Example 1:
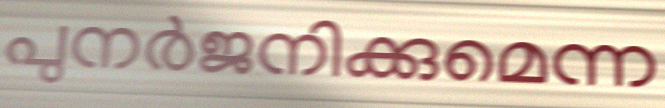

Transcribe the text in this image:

പുനർജനിക്കുമെന്ന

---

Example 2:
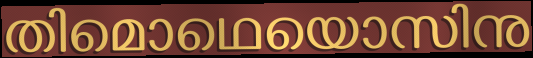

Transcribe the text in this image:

തിമൊഥെയൊസിനു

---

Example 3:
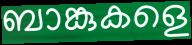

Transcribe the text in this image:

ബാങ്കുകളെ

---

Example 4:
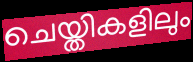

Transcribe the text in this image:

ചെയ്തികളിലും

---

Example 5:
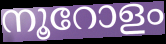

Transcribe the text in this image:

നൂറോളം